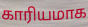
காரியமாக